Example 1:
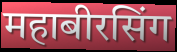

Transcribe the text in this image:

महाबीरसिंग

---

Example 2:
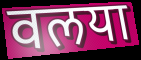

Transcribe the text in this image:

वलया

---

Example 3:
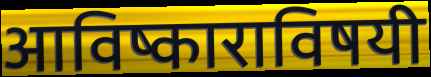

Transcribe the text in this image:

आविष्काराविषयी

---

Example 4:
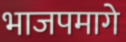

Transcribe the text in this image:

भाजपमागे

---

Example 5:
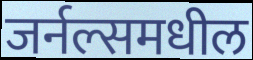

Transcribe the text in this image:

जर्नल्समधील